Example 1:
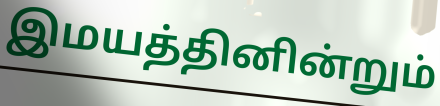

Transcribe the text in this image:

இமயத்தினின்றும்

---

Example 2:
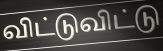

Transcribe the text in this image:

விட்டுவிட்டு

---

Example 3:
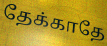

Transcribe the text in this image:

தேக்காதே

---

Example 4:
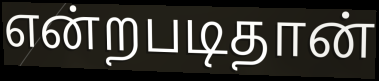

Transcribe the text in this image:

என்றபடிதான்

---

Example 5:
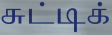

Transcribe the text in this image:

சுட்டிக்